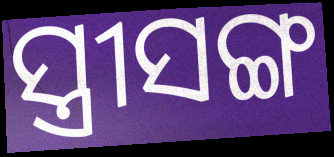
ସ୍ତ୍ରୀସଙ୍ଗ